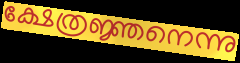
ക്ഷേത്രജ്ഞനെന്നു